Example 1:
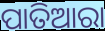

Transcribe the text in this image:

ପାତିଆରା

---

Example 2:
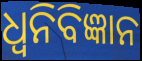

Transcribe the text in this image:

ଧ୍ୱନିବିଜ୍ଞାନ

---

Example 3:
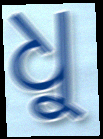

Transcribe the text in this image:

ଧୁ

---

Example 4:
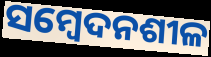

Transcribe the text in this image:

ସମ୍ବେଦନଶୀଳ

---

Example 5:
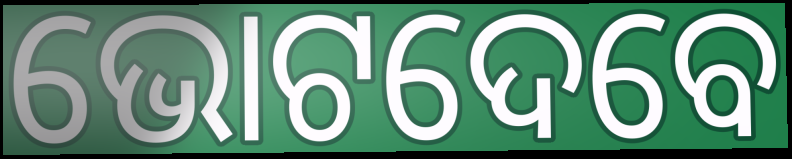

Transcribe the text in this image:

ଭୋଟଦେବେ